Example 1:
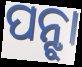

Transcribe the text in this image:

ପନ୍ଝା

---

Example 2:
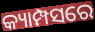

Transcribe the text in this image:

କ୍ୟାମ୍ପସରେ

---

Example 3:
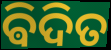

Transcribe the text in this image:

ଵିଦିତ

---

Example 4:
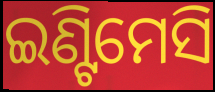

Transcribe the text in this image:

ଇଣ୍ଟିମେସି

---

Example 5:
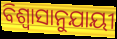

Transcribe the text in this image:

ବିଶ୍ୱାସାନୁଯାୟୀ